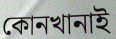
কোনখানাই